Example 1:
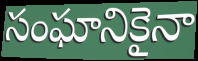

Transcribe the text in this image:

సంఘానికైనా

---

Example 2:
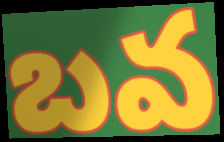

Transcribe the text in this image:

బవ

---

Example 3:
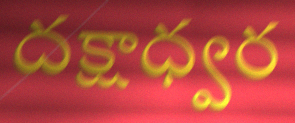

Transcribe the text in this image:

దక్షాధ్వర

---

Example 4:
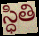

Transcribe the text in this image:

స్ధితి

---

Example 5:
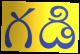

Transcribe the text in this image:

గడి